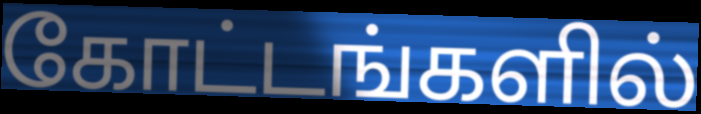
கோட்டங்களில்